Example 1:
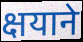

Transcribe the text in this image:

क्षयाने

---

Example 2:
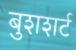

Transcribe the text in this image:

बुशशर्ट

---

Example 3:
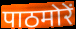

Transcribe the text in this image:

पाठमोरें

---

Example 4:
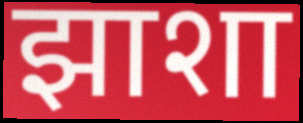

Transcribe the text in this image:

झाशा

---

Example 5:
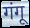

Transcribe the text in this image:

गंगू